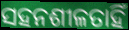
ସହନଶୀଳତାହିଁ